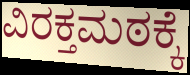
ವಿರಕ್ತಮಠಕ್ಕೆ